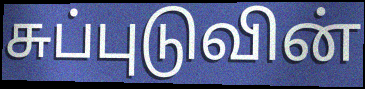
சுப்புடுவின்